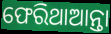
ଫେରିଥାଆନ୍ତା